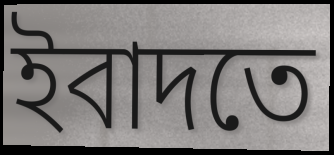
ইবাদতে